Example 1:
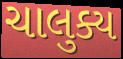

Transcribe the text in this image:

ચાલુક્ય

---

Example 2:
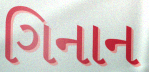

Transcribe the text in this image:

ગિનાન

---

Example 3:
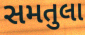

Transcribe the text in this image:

સમતુલા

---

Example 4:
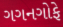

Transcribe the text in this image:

ગગનગોફે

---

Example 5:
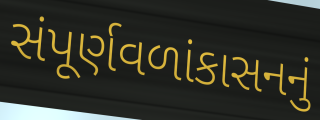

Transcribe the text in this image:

સંપૂર્ણવળાંકાસનનું